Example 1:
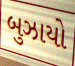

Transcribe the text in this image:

બુઝાયો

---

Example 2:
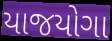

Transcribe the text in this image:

યાજયોગા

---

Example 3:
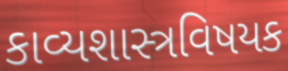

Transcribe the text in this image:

કાવ્યશાસ્ત્રવિષયક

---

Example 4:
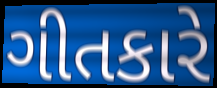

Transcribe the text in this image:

ગીતકારે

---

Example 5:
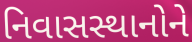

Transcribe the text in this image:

નિવાસસ્થાનોને